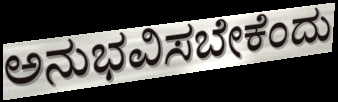
ಅನುಭವಿಸಬೇಕೆಂದು